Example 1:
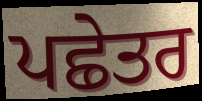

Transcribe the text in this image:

ਪਛੇਤਰ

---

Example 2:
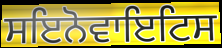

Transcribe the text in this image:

ਸਇਨੋਵਾਇਟਿਸ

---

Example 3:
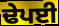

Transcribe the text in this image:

ਢੇਪਈ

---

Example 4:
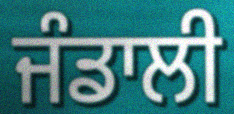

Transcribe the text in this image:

ਜੰਡਾਲੀ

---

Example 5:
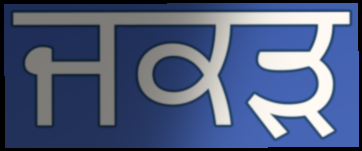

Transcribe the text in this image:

ਜਕੜ